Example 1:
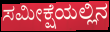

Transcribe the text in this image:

ಸಮೀಕ್ಷೆಯಲ್ಲಿನ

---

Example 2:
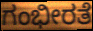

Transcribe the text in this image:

ಗಂಭೀರತೆ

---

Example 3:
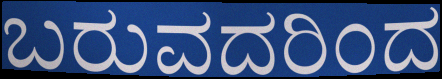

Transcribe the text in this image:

ಬರುವದರಿಂದ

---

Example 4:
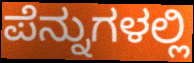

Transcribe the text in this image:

ಪೆನ್ನುಗಳಲ್ಲಿ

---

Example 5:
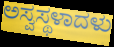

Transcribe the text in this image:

ಅಸ್ವಸ್ಥಳಾದಳು